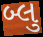
બ્લુ